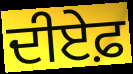
ਦੀਏਫ਼